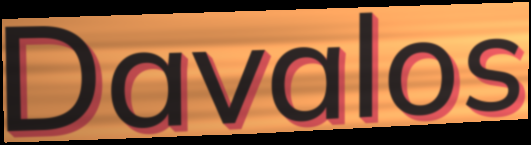
Davalos